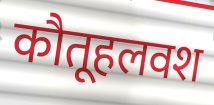
कौतूहलवश